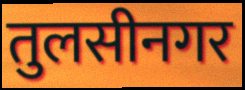
तुलसीनगर